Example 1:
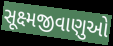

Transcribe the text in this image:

સૂક્ષ્મજીવાણુઓ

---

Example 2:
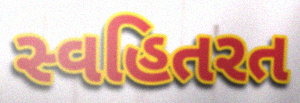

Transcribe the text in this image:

સ્વહિતરત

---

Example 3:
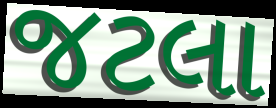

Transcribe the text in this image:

જટલા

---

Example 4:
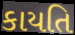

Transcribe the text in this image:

કાયતિ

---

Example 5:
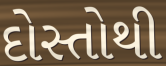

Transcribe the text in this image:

દોસ્તોથી